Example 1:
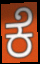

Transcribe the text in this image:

ಕೆ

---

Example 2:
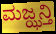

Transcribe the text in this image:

ಮಜ್ಝನ್ತಿ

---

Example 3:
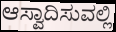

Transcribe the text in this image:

ಆಸ್ವಾದಿಸುವಲ್ಲಿ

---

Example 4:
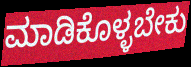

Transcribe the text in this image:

ಮಾಡಿಕೊಳ್ಳಬೇಕು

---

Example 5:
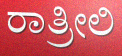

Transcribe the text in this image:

ರಾತ್ರೀಲಿ